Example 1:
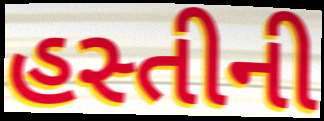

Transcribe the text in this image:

હસ્તીની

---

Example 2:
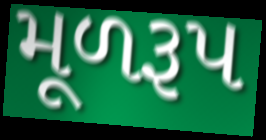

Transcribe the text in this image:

મૂળરૂપ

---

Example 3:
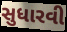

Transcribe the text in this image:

સુધારવી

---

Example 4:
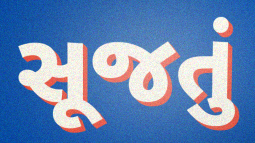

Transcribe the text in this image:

સૂજતું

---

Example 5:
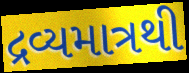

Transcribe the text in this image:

દ્રવ્યમાત્રથી